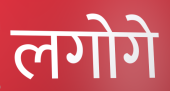
लगोगे